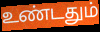
உண்டதும்